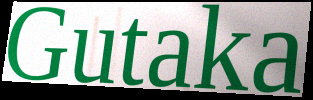
Gutaka